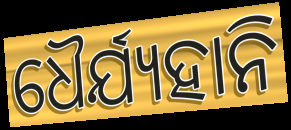
ଧୈର୍ଯ୍ୟହାନି